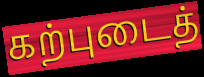
கற்புடைத்